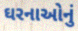
ઘરનાઓનું